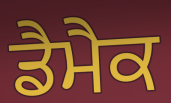
ਡੈਮੈਕ